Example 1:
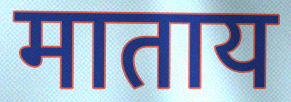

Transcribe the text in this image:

माताय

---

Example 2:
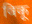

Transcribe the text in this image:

विकू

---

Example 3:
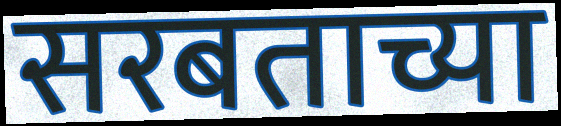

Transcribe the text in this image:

सरबताच्या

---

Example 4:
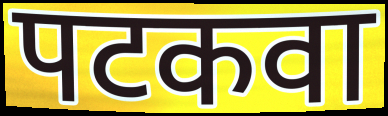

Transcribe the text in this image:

पटकवा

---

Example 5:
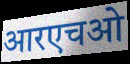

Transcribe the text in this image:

आरएचओ